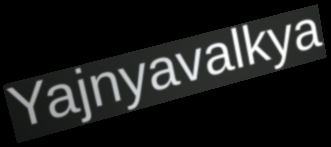
Yajnyavalkya